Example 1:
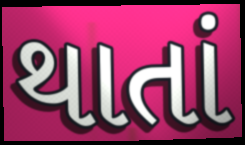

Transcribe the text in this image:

થાતાં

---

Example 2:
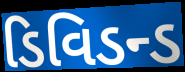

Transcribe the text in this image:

ડિવિડન્ડ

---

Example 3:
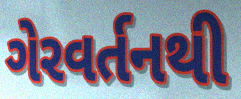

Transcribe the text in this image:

ગેરવર્તનથી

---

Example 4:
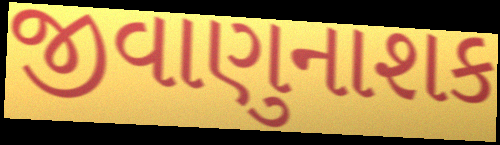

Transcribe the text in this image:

જીવાણુનાશક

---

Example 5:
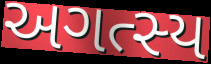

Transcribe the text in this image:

અગત્સ્ય